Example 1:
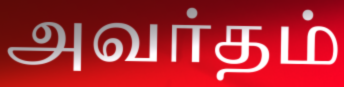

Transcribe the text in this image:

அவர்தம்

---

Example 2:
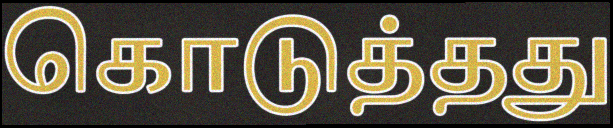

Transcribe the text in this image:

கொடுத்தது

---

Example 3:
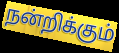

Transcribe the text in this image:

நன்றிக்கும்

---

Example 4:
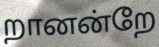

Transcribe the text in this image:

றானன்றே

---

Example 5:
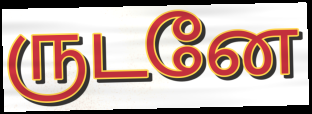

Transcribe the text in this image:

ருடனே